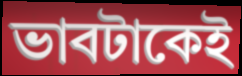
ভাবটাকেই